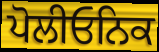
ਪੋਲੀਓਨਿਕ